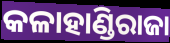
କଳାହାଣ୍ଡିରାଜା